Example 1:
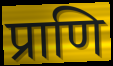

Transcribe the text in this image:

प्राणि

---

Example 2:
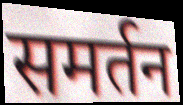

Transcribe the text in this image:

समर्तन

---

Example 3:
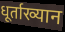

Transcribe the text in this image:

धूर्ताख्यान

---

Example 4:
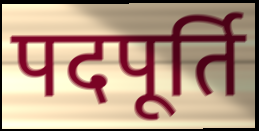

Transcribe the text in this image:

पदपूर्ति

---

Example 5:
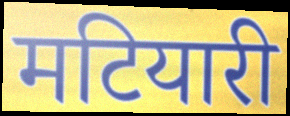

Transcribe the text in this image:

मटियारी